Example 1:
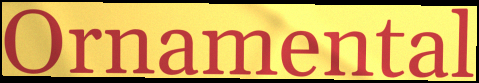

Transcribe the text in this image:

Ornamental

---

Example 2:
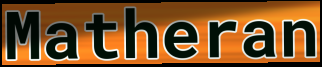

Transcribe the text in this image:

Matheran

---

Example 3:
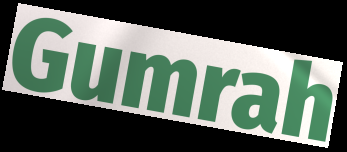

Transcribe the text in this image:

Gumrah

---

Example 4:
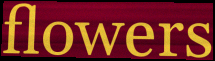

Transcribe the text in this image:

flowers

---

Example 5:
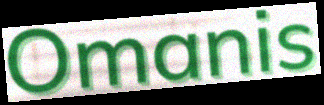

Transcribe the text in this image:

Omanis